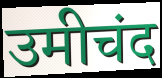
उमीचंद